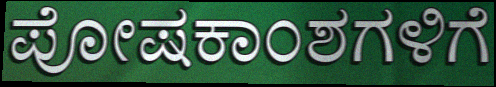
ಪೋಷಕಾಂಶಗಳಿಗೆ